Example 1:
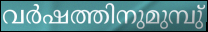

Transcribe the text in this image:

വർഷത്തിനുമുമ്പു്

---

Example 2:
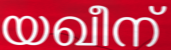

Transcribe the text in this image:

യഖീന്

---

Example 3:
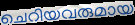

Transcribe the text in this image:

ചെറിയവരുമായ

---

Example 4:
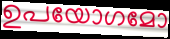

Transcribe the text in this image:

ഉപയോഗമോ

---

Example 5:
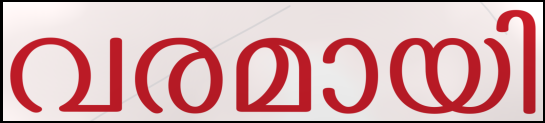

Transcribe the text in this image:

വരമായി